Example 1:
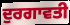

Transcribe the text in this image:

ਦੁਰਗਾਵਤੀ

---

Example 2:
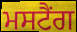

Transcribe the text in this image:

ਮਸਟੈਂਗ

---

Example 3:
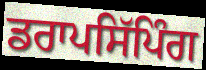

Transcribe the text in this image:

ਡਰਾਪਸਿੱਪਿੰਗ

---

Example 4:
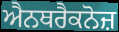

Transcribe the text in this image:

ਐਨਥਰੈਕਨੋਜ਼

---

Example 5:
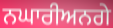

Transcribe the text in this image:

ਨਘਾਰੀਅਨਗੇ